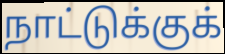
நாட்டுக்குக்